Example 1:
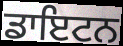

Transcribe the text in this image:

ਡਾਇਟਨ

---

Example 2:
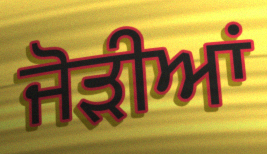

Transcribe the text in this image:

ਜੋਡ਼ੀਆਂ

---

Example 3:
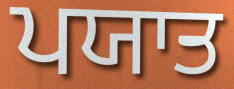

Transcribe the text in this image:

ਪਯਾਤ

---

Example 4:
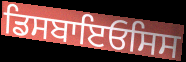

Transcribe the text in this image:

ਡਿਸਬਾਇਓਸਿਸ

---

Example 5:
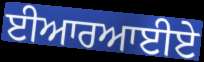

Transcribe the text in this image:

ਈਆਰਆਈਏ